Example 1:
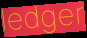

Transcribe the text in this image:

ledger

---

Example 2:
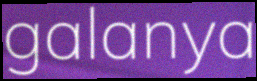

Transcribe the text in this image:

galanya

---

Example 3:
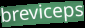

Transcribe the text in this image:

breviceps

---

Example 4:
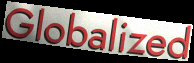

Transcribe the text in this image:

Globalized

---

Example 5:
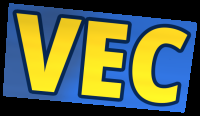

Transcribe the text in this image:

VEC